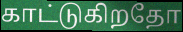
காட்டுகிறதோ